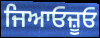
ਜਿਆਓਜ਼ੂਓ